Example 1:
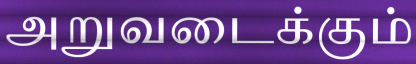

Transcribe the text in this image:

அறுவடைக்கும்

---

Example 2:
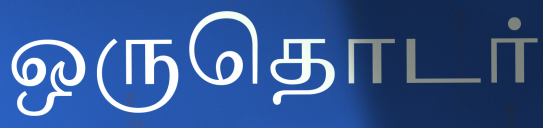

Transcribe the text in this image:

ஒருதொடர்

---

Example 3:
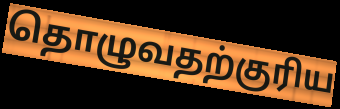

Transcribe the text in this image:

தொழுவதற்குரிய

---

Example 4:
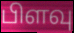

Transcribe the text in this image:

பிளவு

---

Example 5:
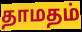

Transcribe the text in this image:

தாமதம்